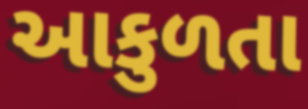
આકુળતા